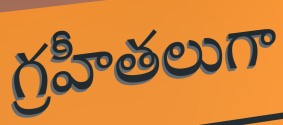
గ్రహీతలుగా